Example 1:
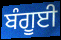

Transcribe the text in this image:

ਬੰਗੂਈ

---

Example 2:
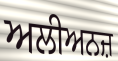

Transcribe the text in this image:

ਅਲੀਅਨਜ਼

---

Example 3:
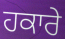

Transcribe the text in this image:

ਹਕਾਰੇ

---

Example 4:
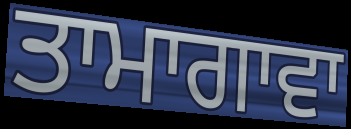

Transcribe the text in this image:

ਤਾਮਾਗਾਵਾ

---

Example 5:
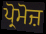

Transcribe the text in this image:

ਪ੍ਰੋਮੋਜ਼